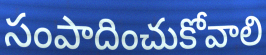
సంపాదించుకోవాలి